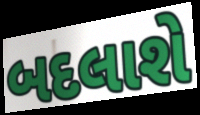
બદલાશે